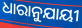
ଧାରାନୁଯାୟୀ